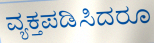
ವ್ಯಕ್ತಪಡಿಸಿದರೂ